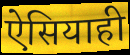
ऐसियाही